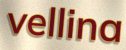
vellina